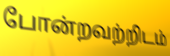
போன்றவற்றிடம்